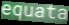
equata